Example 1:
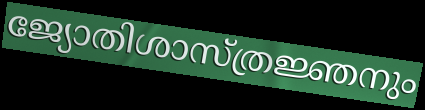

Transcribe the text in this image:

ജ്യോതിശാസ്ത്രജ്ഞനും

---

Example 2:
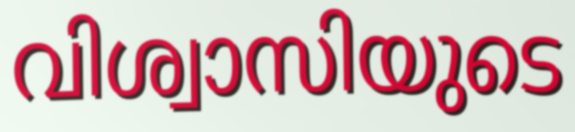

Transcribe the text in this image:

വിശ്വാസിയുടെ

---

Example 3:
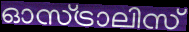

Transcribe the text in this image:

ഓസ്ട്രാലിസ്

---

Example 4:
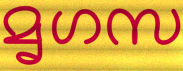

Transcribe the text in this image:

മൃഗസ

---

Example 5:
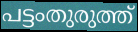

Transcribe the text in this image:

പട്ടംതുരുത്ത്